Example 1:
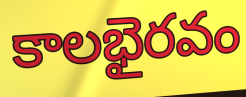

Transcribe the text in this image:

కాలభైరవం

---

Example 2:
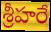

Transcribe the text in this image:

శ్రీహరే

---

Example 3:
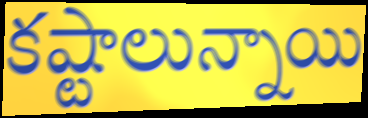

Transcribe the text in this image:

కష్టాలున్నాయి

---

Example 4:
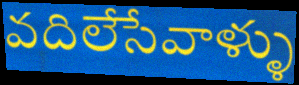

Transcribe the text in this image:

వదిలేసేవాళ్ళు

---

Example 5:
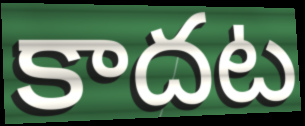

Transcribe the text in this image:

కాదట